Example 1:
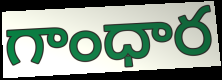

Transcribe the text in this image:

గాంధార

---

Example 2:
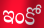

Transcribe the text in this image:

ఇంకో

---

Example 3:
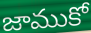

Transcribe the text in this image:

జాముకో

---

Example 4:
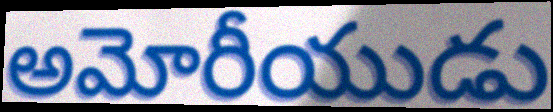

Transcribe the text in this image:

అమోరీయుడు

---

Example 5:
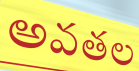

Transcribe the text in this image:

అవతల